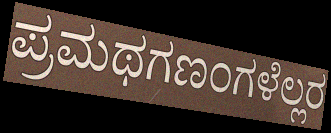
ಪ್ರಮಥಗಣಂಗಳೆಲ್ಲರ